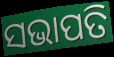
ସଭାପତି